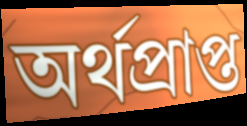
অর্থপ্রাপ্ত